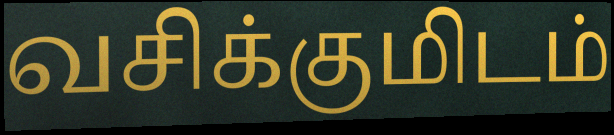
வசிக்குமிடம்